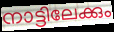
നാട്ടിലേക്കും